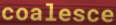
coalesce